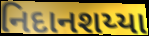
નિદાનશય્યા